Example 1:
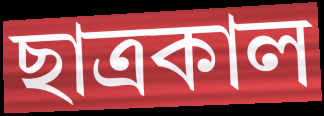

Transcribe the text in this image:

ছাত্রকাল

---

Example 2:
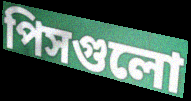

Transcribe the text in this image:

পিসগুলো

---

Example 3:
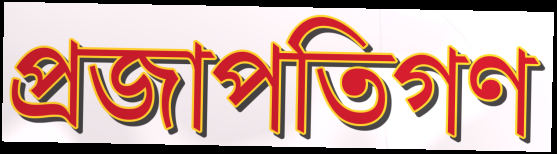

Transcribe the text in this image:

প্রজাপতিগণ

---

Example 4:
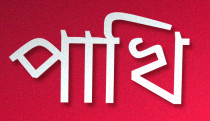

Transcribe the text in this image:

পাখি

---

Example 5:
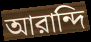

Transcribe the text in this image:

আরান্দি